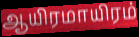
ஆயிரமாயிரம்